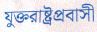
যুক্তরাষ্ট্রপ্রবাসী